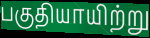
பகுதியாயிற்று